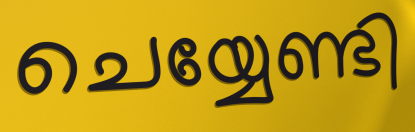
ചെയ്യേണ്ടി